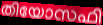
തിയോസഫി